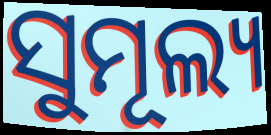
ସୁମୂଲ୍ୟ